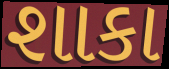
શાકા